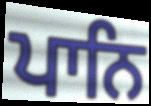
ਪਾਨਿ